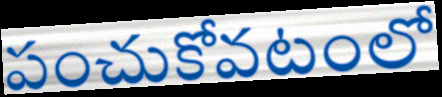
పంచుకోవటంలో